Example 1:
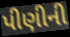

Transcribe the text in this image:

પીણીની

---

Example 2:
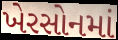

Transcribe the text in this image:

ખેરસોનમાં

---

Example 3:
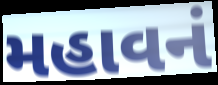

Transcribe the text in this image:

મહાવનં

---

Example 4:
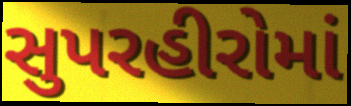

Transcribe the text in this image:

સુપરહીરોમાં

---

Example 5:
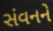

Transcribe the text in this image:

સંવનને